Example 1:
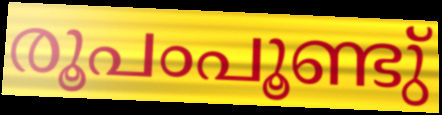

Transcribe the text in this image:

രൂപംപൂണ്ടു്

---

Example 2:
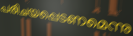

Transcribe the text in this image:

പരിചയപ്പെടണമെന്നു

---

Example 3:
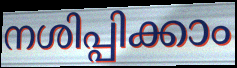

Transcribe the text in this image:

നശിപ്പിക്കാം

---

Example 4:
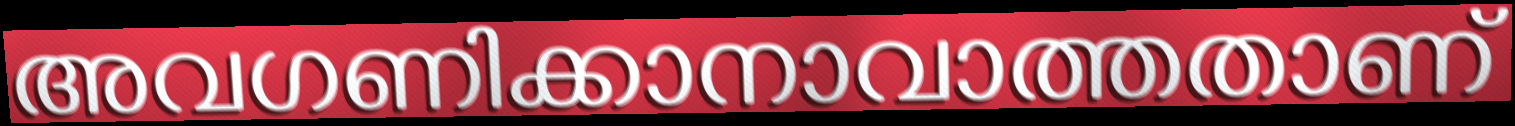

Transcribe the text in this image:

അവഗണിക്കാനാവാത്തതാണ്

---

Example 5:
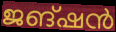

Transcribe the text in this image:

ജങ്ഷൻ